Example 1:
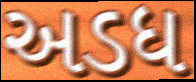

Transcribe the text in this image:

અડધ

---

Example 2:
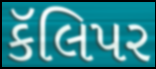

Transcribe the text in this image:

કૅલિપર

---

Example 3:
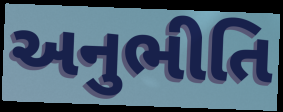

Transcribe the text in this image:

અનુભીતિ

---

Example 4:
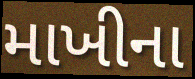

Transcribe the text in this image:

માખીના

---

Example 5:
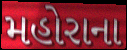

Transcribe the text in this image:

મહોરાના